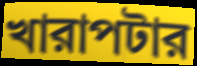
খারাপটার